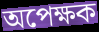
অপেক্ষক